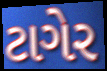
ટાગેર